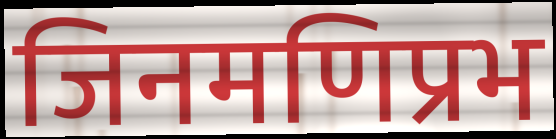
जिनमणिप्रभ